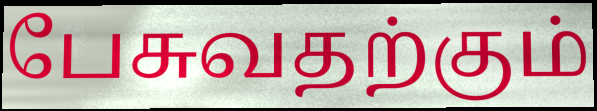
பேசுவதற்கும்